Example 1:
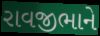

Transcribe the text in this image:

રાવજીભાને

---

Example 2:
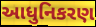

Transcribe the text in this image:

આધુનિકરણ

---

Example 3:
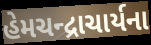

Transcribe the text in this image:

હેમચન્દ્રાચાર્યના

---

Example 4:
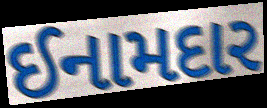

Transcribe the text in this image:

ઈનામદાર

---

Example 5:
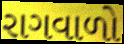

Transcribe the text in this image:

રાગવાળો